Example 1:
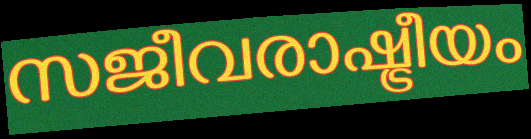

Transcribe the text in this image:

സജീവരാഷ്ട്രീയം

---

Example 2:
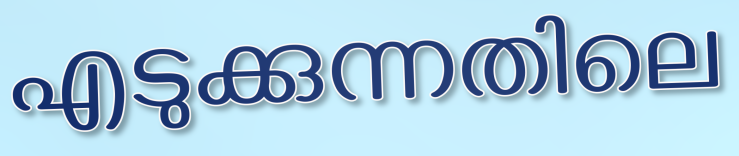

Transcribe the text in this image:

എടുക്കുന്നതിലെ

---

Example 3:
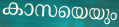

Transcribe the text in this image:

കാസയെയും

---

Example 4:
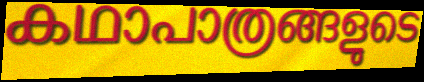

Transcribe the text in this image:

കഥാപാത്രങ്ങളുടെ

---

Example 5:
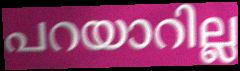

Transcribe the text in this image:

പറയാറില്ല